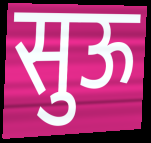
सुऊ